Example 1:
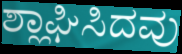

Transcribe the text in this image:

ಶ್ಲಾಘಿಸಿದವು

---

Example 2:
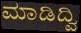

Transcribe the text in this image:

ಮಾಡಿದ್ವಿ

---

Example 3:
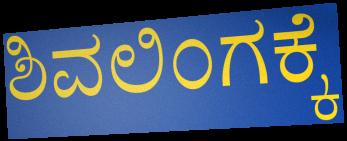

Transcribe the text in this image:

ಶಿವಲಿಂಗಕ್ಕೆ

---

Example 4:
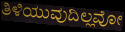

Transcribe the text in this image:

ತಿಳಿಯುವುದಿಲ್ಲವೋ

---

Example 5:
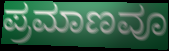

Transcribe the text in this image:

ಪ್ರಮಾಣವೂ